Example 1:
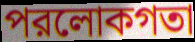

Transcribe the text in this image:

পরলোকগতা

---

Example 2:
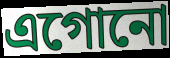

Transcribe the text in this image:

এগোনো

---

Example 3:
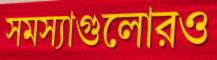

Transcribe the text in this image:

সমস্যাগুলোরও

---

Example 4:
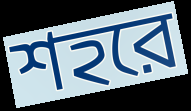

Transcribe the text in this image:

শহরে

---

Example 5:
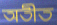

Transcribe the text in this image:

অতীত